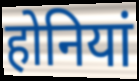
होनियां